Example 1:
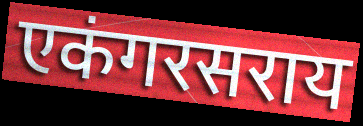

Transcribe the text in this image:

एकंगरसराय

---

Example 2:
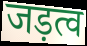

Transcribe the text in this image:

जड़त्व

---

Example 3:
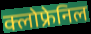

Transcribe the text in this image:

क्लोफ्रेनिल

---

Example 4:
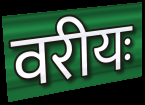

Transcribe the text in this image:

वरीयः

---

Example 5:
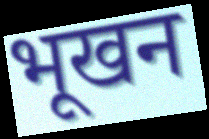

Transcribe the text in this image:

भूखन